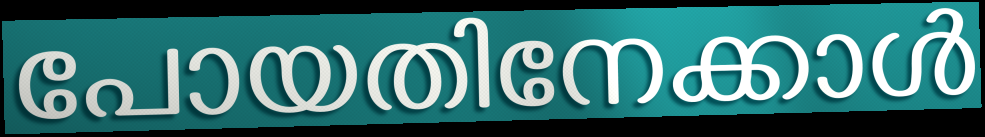
പോയതിനേക്കാൾ